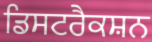
ਡਿਸਟਰੈਕਸ਼ਨ